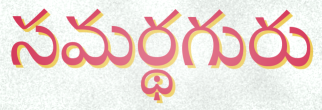
సమర్థగురు